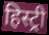
हिस्ट्री